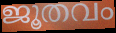
ജൂതവം